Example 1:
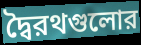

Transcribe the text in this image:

দ্বৈরথগুলোর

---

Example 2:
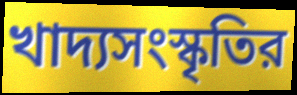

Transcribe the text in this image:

খাদ্যসংস্কৃতির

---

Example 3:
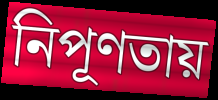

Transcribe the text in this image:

নিপূণতায়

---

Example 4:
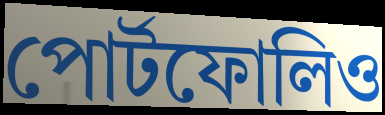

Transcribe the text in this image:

পোর্টফোলিও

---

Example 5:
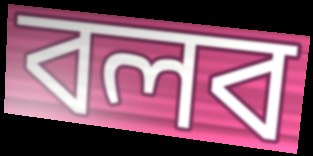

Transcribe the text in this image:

বলব